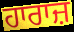
ਹਾਰਾਜ਼